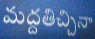
మద్దతిచ్చినా